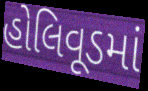
હોલિવૂડમાં